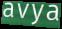
avya